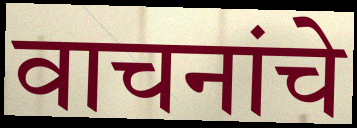
वाचनांचे